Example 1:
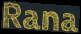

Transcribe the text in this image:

Rana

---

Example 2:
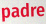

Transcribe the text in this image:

padre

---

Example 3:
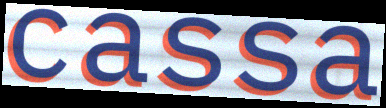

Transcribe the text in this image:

cassa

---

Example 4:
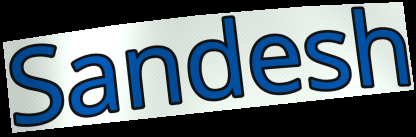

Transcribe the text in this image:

Sandesh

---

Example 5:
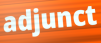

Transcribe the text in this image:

adjunct